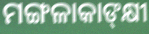
ମଙ୍ଗଳାକାଙ୍‍କ୍ଷୀ